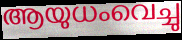
ആയുധംവെച്ചു